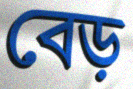
বেড়